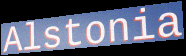
Alstonia